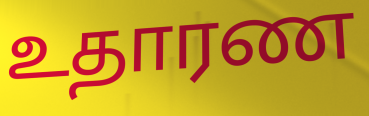
உதாரண